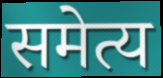
समेत्य